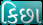
કિછા